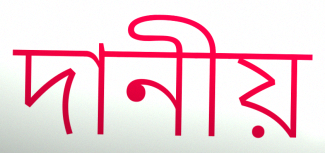
দানীয়